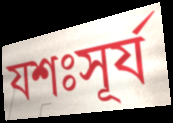
যশঃসূর্য